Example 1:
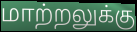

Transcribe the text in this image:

மாற்றலுக்கு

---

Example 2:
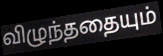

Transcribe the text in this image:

விழுந்ததையும்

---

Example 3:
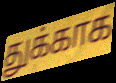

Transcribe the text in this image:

துக்காக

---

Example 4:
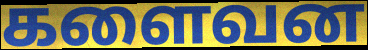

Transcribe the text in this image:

களைவன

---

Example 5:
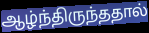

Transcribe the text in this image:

ஆழ்ந்திருந்ததால்